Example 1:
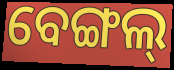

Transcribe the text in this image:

ବେଙ୍ଗଲ୍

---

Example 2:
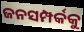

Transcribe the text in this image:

ଜନସମ୍ପର୍କକୁ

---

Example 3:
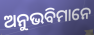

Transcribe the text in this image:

ଅନୁଭବିମାନେ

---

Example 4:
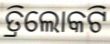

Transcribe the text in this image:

ତ୍ରିଲୋକଟି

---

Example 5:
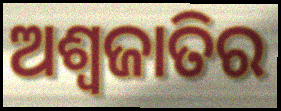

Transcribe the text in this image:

ଅଶ୍ୱଜାତିର